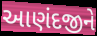
આણંદજીને